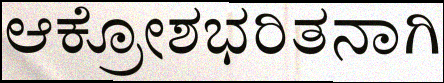
ಆಕ್ರೋಶಭರಿತನಾಗಿ